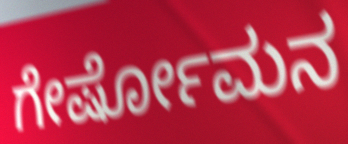
ಗೇರ್ಷೋಮನ